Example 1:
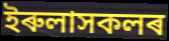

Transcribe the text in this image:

ইৰুলাসকলৰ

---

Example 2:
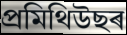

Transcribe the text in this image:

প্ৰমিথিউছৰ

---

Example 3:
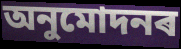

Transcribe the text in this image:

অনুমোদনৰ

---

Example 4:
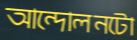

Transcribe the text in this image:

আন্দোলনটো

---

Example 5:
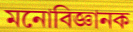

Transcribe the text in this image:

মনোবিজ্ঞানক